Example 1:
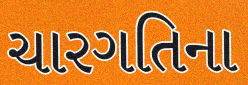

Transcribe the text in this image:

ચારગતિના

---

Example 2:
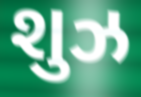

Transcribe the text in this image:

શુઝ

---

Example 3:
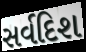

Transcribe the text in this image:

સર્વદિશ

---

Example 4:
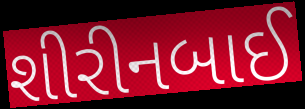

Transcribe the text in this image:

શીરીનબાઈ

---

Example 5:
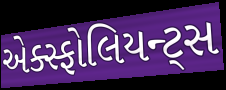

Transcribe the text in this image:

એક્સ્ફોલિયન્ટ્સ